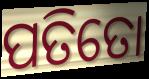
ପତିତୋ